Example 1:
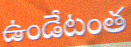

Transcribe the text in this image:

ఉండేటంత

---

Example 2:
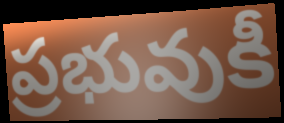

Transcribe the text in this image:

ప్రభువుకీ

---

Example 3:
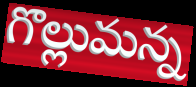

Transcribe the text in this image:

గొల్లుమన్న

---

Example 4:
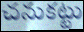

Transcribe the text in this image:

చనుకట్టు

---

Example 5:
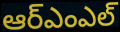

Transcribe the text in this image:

ఆర్ఎంఎల్